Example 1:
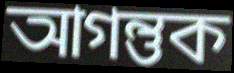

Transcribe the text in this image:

আগন্তুক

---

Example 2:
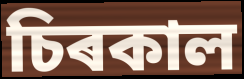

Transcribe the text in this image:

চিৰকাল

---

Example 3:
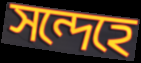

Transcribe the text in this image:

সন্দেহে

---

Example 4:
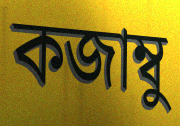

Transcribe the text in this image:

কজাম্বু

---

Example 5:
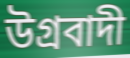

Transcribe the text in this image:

উগ্ৰবাদী